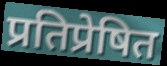
प्रतिप्रेषित